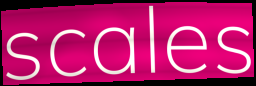
scales